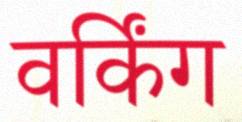
वर्किंग